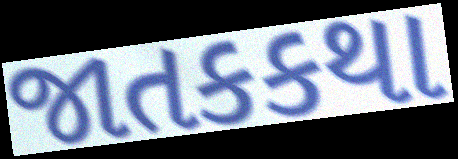
જાતકકથા